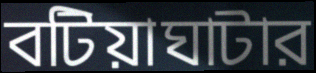
বটিয়াঘাটার